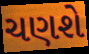
ચણશે